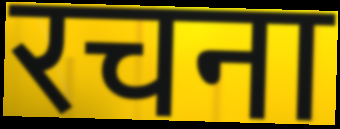
रचना